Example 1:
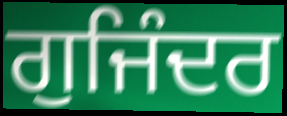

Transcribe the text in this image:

ਗੁਜਿੰਦਰ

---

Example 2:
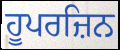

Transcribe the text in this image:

ਹੂਪਰਜ਼ਿਨ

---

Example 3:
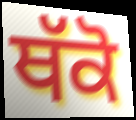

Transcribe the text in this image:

ਥੱਕੋ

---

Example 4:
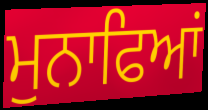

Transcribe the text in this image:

ਮੁਨਾਫਿਆਂ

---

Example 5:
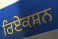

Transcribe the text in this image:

ਰਿਏਕਸ਼ਨ